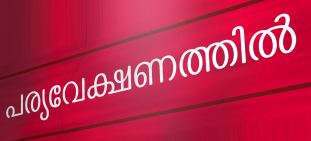
പര്യവേക്ഷണത്തിൽ